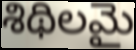
శిథిలమై